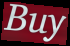
Buy